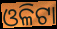
ଓଳିଟା